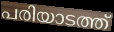
പരിയാടത്ത്